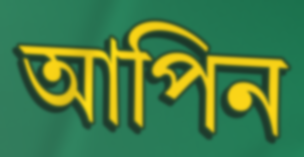
আপিন